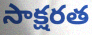
సాక్షరత